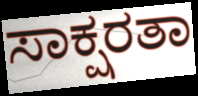
ಸಾಕ್ಷರತಾ